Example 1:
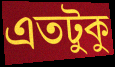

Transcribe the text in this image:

এতটুকু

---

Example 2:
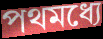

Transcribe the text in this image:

পথমধ্যে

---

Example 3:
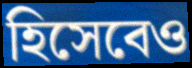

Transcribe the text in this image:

হিসেবেও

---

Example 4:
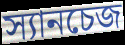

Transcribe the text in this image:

স্যানচেজ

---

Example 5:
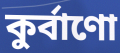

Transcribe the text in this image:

কুর্বাণো